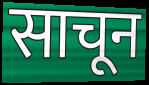
साचून